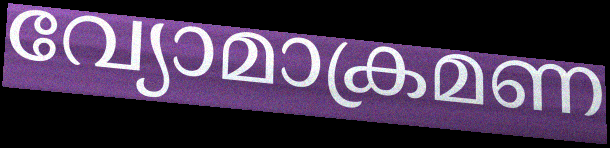
വ്യോമാക്രമണ